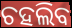
ଚହଲିବ